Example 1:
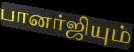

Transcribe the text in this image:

பானர்ஜியும்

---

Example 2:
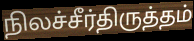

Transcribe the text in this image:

நிலச்சீர்திருத்தம்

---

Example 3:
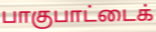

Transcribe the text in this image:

பாகுபாட்டைக்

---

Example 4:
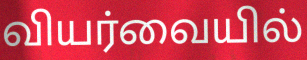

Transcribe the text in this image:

வியர்வையில்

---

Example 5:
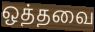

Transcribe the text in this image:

ஒத்தவை